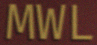
MWL